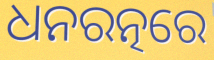
ଧନରତ୍ନରେ